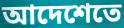
আদেশেতে